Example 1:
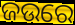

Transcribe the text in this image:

ଜଉରେ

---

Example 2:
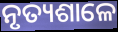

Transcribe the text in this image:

ନୃତ୍ୟଶାଳେ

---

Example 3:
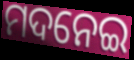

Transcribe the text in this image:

ମଦନେଇ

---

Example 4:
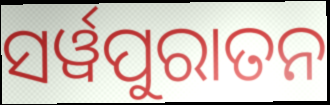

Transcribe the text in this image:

ସର୍ୱପୁରାତନ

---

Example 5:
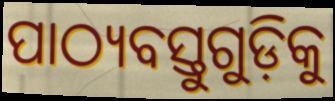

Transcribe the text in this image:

ପାଠ୍ୟବସ୍ତୁଗୁଡ଼ିକୁ